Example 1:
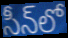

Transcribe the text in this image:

సీన్‌లో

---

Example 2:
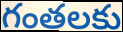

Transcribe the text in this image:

గంతలకు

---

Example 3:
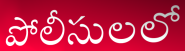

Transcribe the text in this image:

పోలీసులలో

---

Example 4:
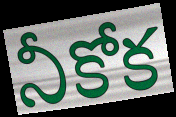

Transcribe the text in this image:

నీకోక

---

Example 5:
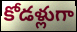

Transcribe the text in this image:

కోడళ్లుగా